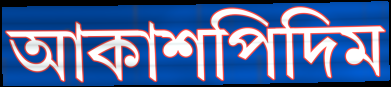
আকাশপিদিম